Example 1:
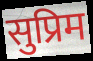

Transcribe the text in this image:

सुप्रिम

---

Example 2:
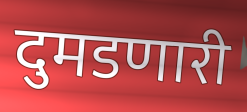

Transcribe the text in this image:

दुमडणारी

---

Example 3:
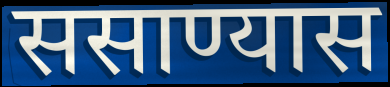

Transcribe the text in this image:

ससाण्यास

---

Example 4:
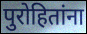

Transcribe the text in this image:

पुरोहितांना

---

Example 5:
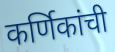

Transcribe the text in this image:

कर्णिकांची